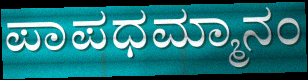
ಪಾಪಧಮ್ಮಾನಂ